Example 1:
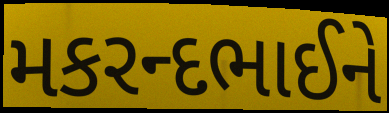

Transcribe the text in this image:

મકરન્દભાઈને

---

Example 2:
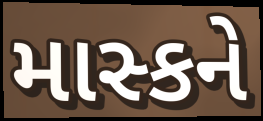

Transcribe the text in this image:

માસ્કને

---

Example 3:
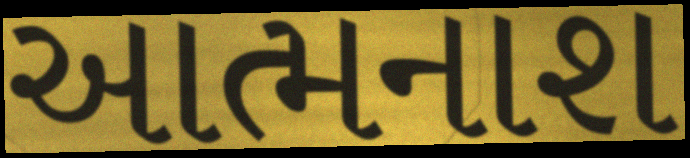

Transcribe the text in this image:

આત્મનાશ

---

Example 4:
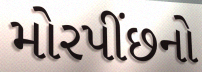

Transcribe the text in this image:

મોરપીંછનો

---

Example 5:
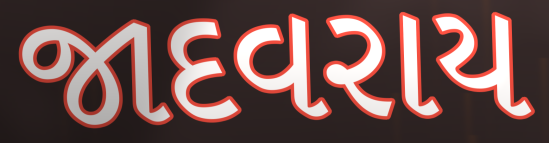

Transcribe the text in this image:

જાદવરાય